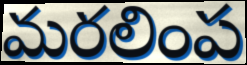
మరలింప